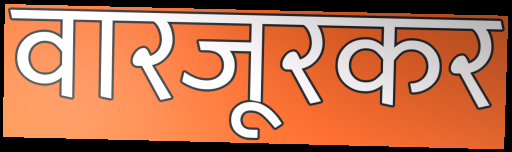
वारजूरकर